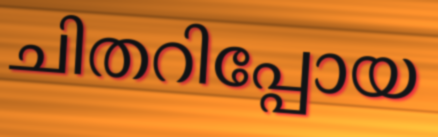
ചിതറിപ്പോയ